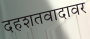
दहशतवादावर